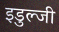
इडुल्जी